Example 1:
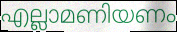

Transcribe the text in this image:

എല്ലാമണിയണം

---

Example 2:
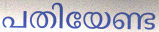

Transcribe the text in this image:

പതിയേണ്ട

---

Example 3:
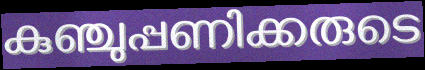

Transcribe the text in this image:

കുഞ്ചുപ്പണിക്കരുടെ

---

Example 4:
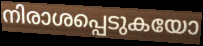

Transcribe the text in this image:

നിരാശപ്പെടുകയോ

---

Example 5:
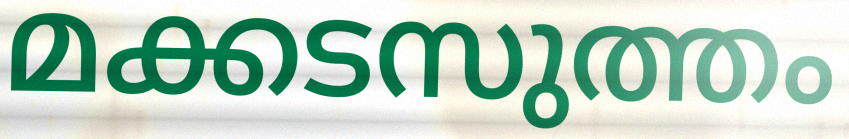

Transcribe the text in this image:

മക്കടസുത്തം